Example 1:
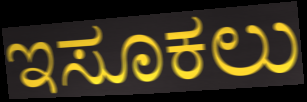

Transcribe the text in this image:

ಇಸೂಕಲು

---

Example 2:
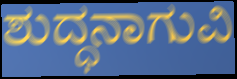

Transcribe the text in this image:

ಶುದ್ಧನಾಗುವಿ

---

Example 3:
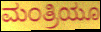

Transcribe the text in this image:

ಮಂತ್ರಿಯೂ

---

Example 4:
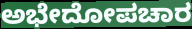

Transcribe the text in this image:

ಅಭೇದೋಪಚಾರ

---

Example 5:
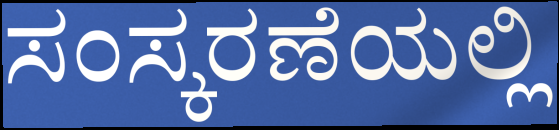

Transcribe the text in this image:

ಸಂಸ್ಕರಣೆಯಲ್ಲಿ